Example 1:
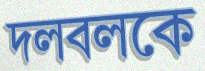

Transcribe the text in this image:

দলবলকে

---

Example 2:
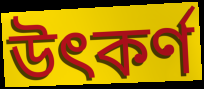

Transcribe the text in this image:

উৎকর্ণ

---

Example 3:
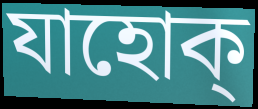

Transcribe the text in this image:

যাহোক্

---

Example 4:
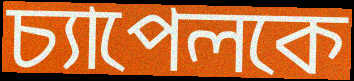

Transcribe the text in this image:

চ্যাপেলকে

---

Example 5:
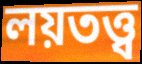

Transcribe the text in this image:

লয়তত্ত্ব